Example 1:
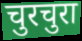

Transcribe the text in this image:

चुरचुरा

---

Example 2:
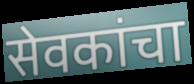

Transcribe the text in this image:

सेवकांचा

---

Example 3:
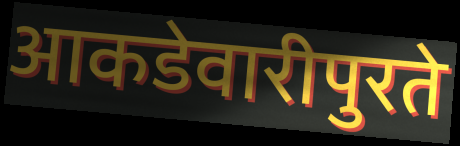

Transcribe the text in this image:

आकडेवारीपुरते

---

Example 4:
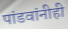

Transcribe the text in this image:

पांडवांनीही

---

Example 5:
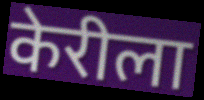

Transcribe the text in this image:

केरीला